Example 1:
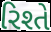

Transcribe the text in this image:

રિશ્તે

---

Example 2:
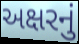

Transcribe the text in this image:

અક્ષરનું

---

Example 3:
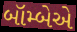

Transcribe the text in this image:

બૉમ્બેએ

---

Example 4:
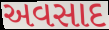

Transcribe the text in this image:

અવસાદ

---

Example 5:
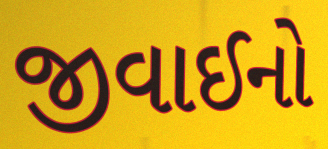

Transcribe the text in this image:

જીવાઈનો